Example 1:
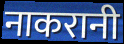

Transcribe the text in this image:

नाकरानी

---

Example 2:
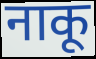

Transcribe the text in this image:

नाकू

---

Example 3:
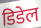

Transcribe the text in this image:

डिडेल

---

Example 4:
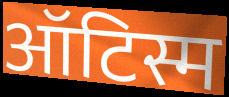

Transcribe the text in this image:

ऑटिस्म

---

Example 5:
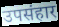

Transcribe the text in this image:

उपसंहार